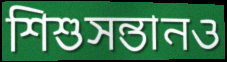
শিশুসন্তানও